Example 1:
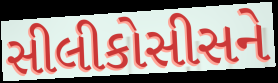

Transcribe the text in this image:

સીલીકોસીસને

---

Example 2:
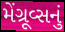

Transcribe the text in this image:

મેંગ્રૂવ્સનું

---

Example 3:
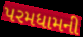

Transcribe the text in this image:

પરમધામની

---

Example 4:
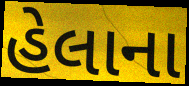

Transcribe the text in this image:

હેલાના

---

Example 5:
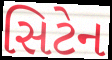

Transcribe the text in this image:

સિટેન